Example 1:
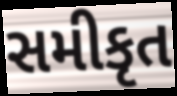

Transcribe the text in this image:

સમીકૃત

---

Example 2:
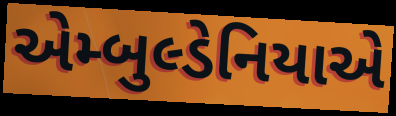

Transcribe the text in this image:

એમ્બુલ્ડેનિયાએ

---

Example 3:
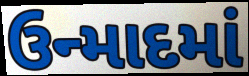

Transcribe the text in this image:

ઉન્માદમાં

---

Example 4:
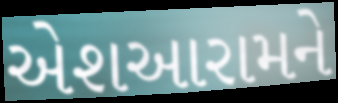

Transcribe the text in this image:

એશઆરામને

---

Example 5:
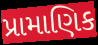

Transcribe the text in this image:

પ્રામાણિક